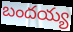
బందయ్య